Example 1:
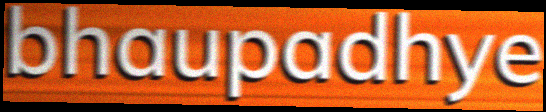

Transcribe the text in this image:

bhaupadhye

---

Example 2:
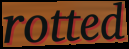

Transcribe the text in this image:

rotted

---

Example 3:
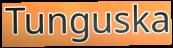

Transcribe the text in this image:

Tunguska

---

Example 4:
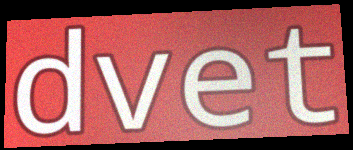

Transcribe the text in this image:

dvet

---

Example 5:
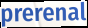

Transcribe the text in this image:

prerenal